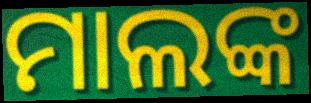
ମାଲଙ୍କ